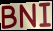
BNI